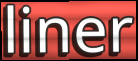
liner